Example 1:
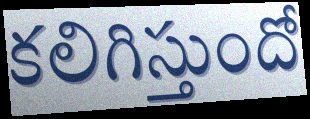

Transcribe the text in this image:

కలిగిస్తుందో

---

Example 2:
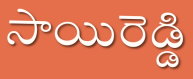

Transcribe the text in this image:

సాయిరెడ్డి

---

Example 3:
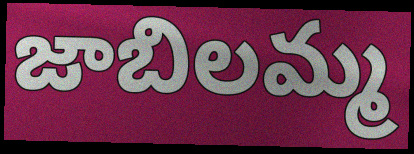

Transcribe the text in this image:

జాబిలమ్మ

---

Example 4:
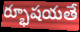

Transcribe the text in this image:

ర్భూషయతే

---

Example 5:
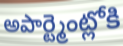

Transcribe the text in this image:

అపార్ట్మెంట్లోకి